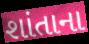
શાંતાના